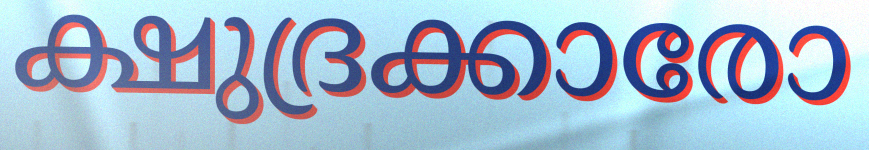
ക്ഷുദ്രക്കാരോ